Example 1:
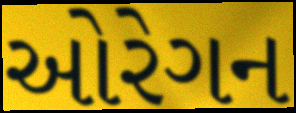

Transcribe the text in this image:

ઓરેગન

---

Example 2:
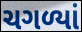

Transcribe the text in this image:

ચગળ્યાં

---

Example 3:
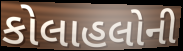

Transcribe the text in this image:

કોલાહલોની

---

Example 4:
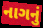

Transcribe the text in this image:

નાગનું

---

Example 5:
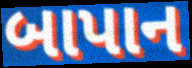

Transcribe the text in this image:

બાપાન